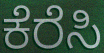
ಕೆರೆಸಿ